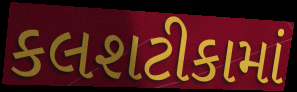
કલશટીકામાં